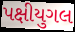
પક્ષીયુગલ